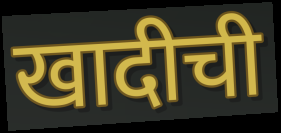
खादीची